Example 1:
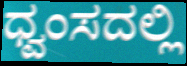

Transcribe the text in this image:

ಧ್ವಂಸದಲ್ಲಿ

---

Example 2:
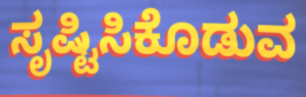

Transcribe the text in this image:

ಸೃಷ್ಟಿಸಿಕೊಡುವ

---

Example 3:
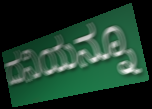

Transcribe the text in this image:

ದನಿಯನ್ನೂ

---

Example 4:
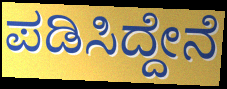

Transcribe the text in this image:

ಪಡಿಸಿದ್ದೇನೆ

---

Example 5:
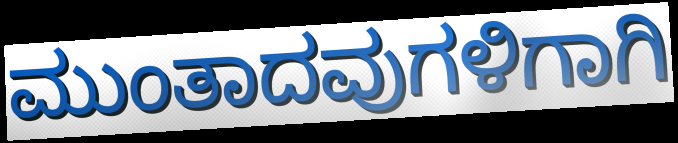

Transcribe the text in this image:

ಮುಂತಾದವುಗಳಿಗಾಗಿ